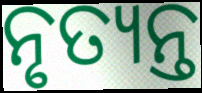
ନୃତ୍ୟନ୍ତ